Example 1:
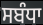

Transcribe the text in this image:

ਸਬੰਧਾ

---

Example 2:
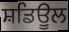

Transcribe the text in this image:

ਸ਼ਡਿਉੂਲ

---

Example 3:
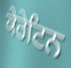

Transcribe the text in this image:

ਕੇਰੇਟਿਨ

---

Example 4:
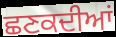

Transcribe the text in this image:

ਛਣਕਦੀਆਂ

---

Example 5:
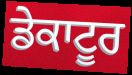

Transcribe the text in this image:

ਡੇਕਾਟੂਰ